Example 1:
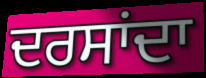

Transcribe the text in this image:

ਦਰਸਾਂਦਾ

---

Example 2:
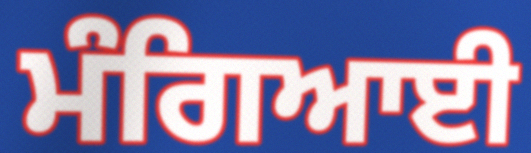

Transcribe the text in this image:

ਮੰਗਿਆਈ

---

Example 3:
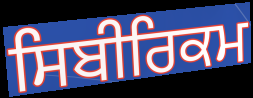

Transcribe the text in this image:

ਸਿਬੀਰਿਕਮ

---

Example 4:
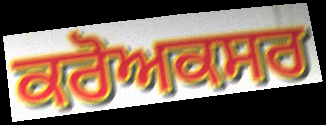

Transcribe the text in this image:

ਕਰੋਅਕਸਰ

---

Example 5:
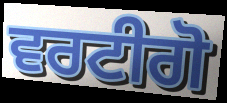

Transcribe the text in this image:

ਵਰਟੀਗੋ